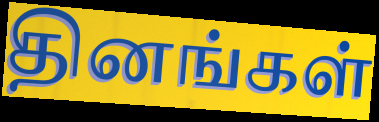
தினங்கள்